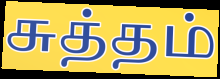
சுத்தம்